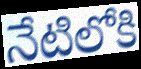
నేటిలోకి